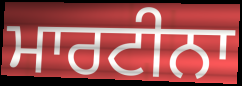
ਮਾਰਟੀਨਾ